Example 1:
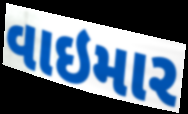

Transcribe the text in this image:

વાઇમાર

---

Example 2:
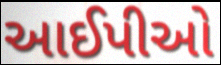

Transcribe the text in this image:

આઈપીઓ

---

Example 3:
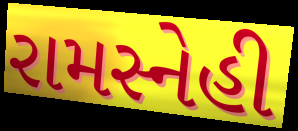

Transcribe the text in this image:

રામસ્નેહી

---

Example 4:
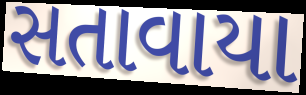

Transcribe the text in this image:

સતાવાયા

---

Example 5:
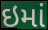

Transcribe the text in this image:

ઇમાં